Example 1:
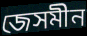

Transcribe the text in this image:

জেসমীন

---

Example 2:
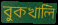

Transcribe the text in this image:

বুকখালি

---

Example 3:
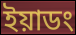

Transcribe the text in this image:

ইয়াডং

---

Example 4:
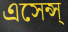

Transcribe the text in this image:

এসেন্স্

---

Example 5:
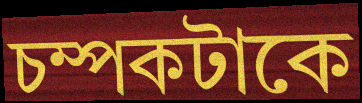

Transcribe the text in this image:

চম্পকটাকে